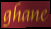
ghane